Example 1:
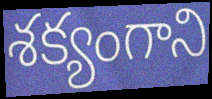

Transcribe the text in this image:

శక్యంగాని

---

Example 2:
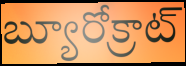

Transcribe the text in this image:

బ్యూరోక్రాట్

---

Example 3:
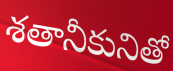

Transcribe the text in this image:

శతానీకునితో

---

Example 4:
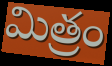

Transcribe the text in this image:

మిత్రం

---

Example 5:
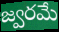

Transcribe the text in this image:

జ్వరమే